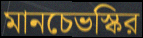
মানচেভস্কির